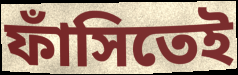
ফাঁসিতেই